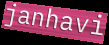
janhavi